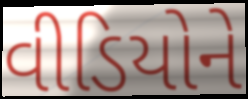
વીડિયોને